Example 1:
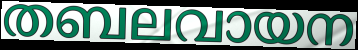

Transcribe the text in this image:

തബലവായന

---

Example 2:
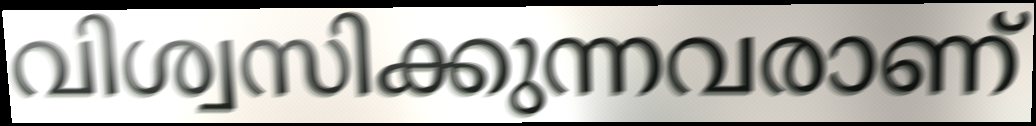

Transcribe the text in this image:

വിശ്വസിക്കുന്നവരാണ്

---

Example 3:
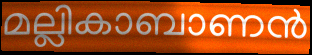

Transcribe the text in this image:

മല്ലികാബാണൻ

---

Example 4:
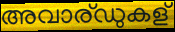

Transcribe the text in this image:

അവാര്ഡുകള്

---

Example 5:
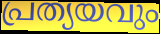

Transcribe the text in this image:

പ്രത്യയവും